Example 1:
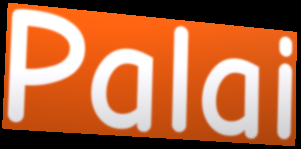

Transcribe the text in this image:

Palai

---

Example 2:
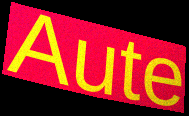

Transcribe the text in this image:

Aute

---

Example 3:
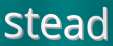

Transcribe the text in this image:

stead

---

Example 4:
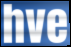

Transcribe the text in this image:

hve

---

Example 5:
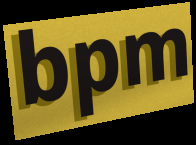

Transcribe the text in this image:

bpm